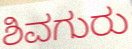
ಶಿವಗುರು